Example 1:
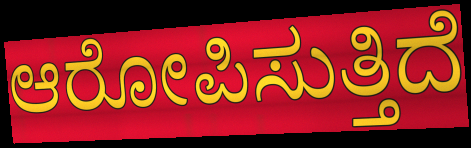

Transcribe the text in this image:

ಆರೋಪಿಸುತ್ತಿದೆ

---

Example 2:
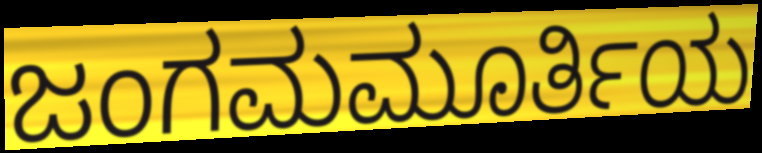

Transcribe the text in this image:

ಜಂಗಮಮೂರ್ತಿಯ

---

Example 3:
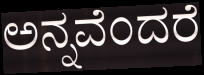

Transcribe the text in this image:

ಅನ್ನವೆಂದರೆ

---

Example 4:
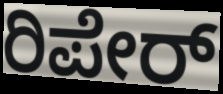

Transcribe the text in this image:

ರಿಪೇರ್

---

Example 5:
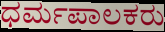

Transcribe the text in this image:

ಧರ್ಮಪಾಲಕರು